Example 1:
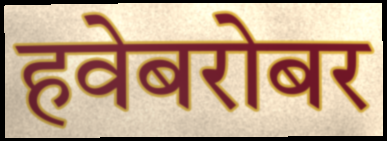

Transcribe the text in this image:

हवेबरोबर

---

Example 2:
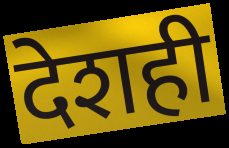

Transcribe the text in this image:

देशही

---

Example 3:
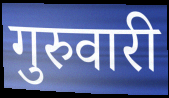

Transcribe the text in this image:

गुरुवारी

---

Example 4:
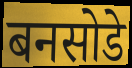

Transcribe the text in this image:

बनसोडे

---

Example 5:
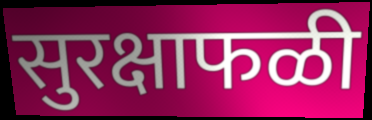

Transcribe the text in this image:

सुरक्षाफळी